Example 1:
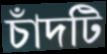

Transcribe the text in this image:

চাঁদটি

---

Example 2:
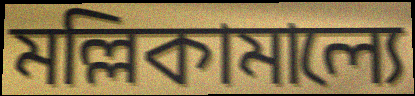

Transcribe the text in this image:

মল্লিকামাল্যে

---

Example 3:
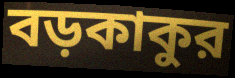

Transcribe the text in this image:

বড়কাকুর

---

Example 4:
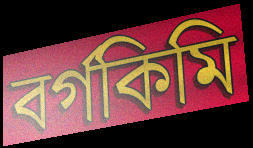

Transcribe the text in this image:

বর্গকিমি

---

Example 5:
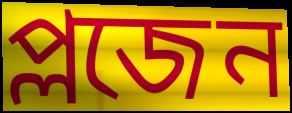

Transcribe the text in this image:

প্লজেন